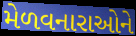
મેળવનારાઓને